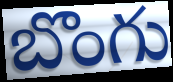
బొంగు